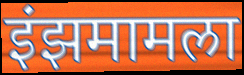
इंझमामला